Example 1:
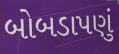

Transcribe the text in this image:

બોબડાપણું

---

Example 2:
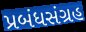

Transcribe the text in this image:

પ્રબંધસંગ્રહ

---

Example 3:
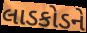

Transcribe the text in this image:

લાડકોડને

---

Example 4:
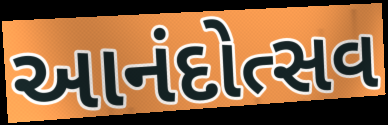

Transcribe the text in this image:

આનંદોત્સવ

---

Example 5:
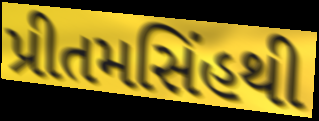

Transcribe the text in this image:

પ્રીતમસિંહથી